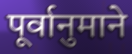
पूर्वानुमाने